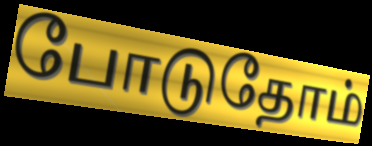
போடுதோம்